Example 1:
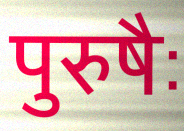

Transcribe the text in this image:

पुरुषैः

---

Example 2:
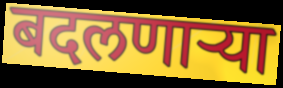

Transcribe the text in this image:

बदलणाऱ्या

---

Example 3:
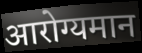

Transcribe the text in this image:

आरोग्यमान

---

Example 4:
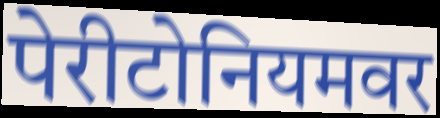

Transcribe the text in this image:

पेरीटोनियमवर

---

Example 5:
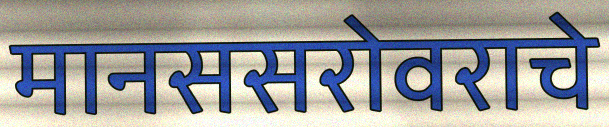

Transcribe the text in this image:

मानससरोवराचे